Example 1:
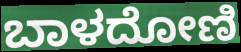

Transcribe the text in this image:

ಬಾಳದೋಣಿ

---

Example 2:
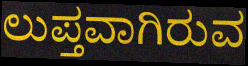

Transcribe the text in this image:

ಲುಪ್ತವಾಗಿರುವ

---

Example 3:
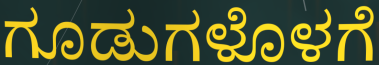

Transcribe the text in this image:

ಗೂಡುಗಳೊಳಗೆ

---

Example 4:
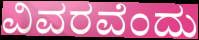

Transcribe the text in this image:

ವಿವರವೆಂದು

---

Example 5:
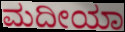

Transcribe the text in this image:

ಮದೀಯಾ